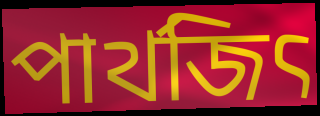
পার্থজিৎ